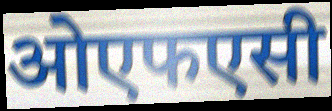
ओएफएसी